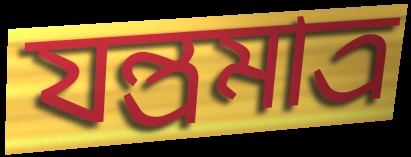
যন্ত্রমাত্র